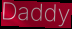
Daddy